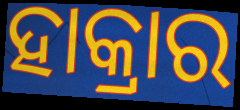
ହାକ୍ରାର